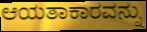
ಆಯತಾಕಾರವನ್ನು